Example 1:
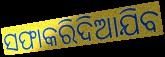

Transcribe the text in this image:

ସଫାକରିଦିଆଯିବ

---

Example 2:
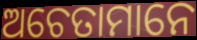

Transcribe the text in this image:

ଅଚେତାମାନେ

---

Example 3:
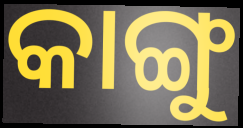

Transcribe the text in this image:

କାଙ୍ଗୁ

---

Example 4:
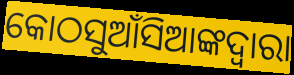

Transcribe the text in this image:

କୋଠସୁଆଁସିଆଙ୍କଦ୍ବାରା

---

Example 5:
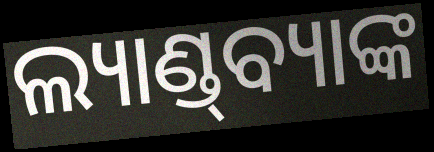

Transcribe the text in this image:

ଲ୍ୟାଣ୍ଡ୍‌ବ୍ୟାଙ୍କ